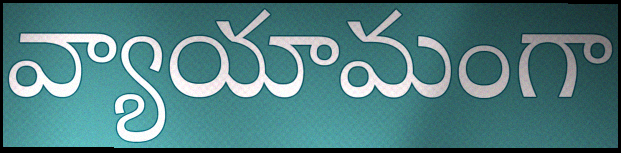
వ్యాయామంగా